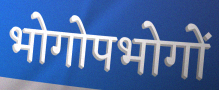
भोगोपभोगों